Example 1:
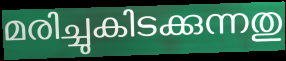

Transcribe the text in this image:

മരിച്ചുകിടക്കുന്നതു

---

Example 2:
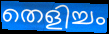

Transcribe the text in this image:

തെളിച്ചം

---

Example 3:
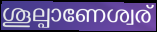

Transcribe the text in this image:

ശൂല്പാണേശ്വര്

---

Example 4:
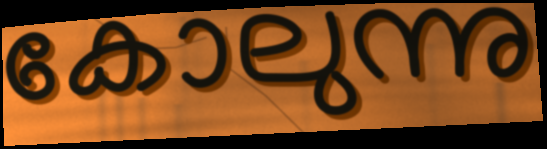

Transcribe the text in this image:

കോലുന്നു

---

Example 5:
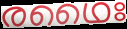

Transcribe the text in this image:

രഥൈഃ